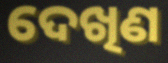
ଦେଖିଣ